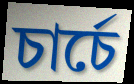
চার্চে